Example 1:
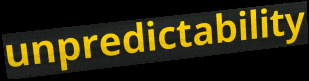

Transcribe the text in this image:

unpredictability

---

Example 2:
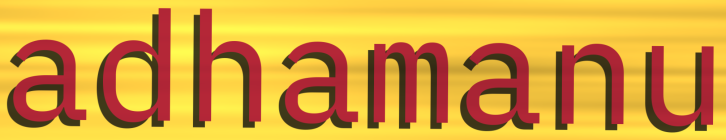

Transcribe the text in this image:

adhamanu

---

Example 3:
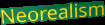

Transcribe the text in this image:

Neorealism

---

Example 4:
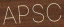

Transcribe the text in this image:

APSC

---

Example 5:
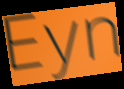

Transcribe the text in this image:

Eyn